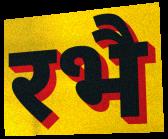
रभै